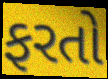
ફરતો